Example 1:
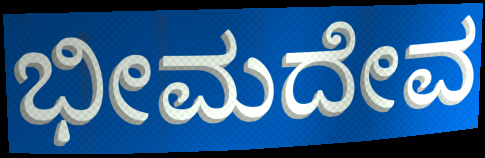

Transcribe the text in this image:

ಭೀಮದೇವ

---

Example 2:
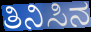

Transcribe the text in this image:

ತಿನಿಸಿನ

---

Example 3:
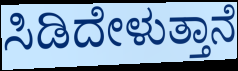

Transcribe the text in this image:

ಸಿಡಿದೇಳುತ್ತಾನೆ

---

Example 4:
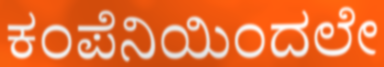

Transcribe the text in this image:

ಕಂಪೆನಿಯಿಂದಲೇ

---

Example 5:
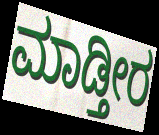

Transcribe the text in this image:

ಮಾಡ್ತೀರ